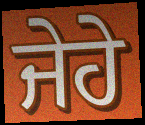
ਜੇਹੇ